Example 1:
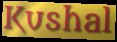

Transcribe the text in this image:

Kushal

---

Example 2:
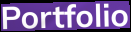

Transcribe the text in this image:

Portfolio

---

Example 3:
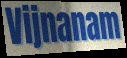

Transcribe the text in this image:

Vijnanam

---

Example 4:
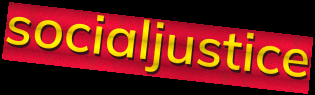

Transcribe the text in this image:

socialjustice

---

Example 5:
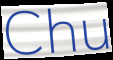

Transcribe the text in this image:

Chu